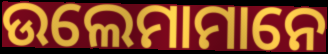
ଉଲେମାମାନେ